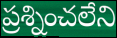
ప్రశ్నించలేని